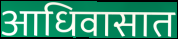
आधिवासात